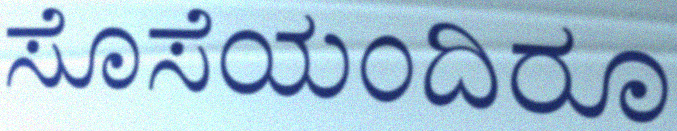
ಸೊಸೆಯಂದಿರೂ